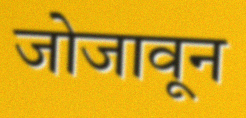
जोजावून